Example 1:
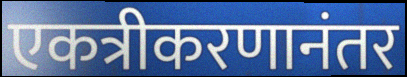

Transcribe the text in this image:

एकत्रीकरणानंतर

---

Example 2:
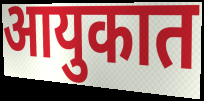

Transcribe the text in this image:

आयुकात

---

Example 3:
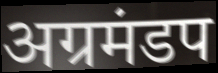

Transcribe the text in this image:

अग्रमंडप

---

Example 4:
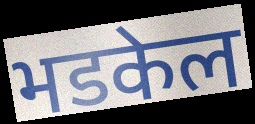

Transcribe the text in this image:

भडकेल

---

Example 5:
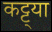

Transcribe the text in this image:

कट्ट्या